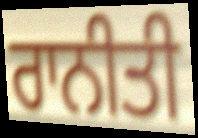
ਰਾਨੀਤੀ